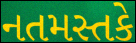
નતમસ્તકે